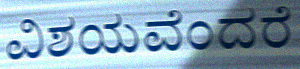
ವಿಶಯವೆಂದರೆ